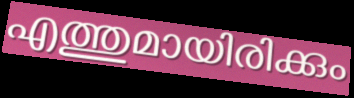
എത്തുമായിരിക്കും